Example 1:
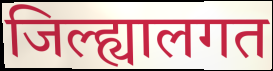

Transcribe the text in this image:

जिल्ह्यालगत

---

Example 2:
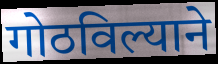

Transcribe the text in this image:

गोठविल्याने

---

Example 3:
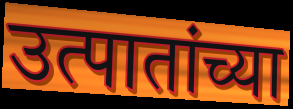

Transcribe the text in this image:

उत्पातांच्या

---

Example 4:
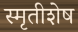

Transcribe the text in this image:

स्मृतीशेष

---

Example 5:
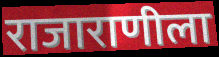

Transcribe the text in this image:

राजाराणीला